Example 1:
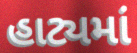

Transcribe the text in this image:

હાટ્યમાં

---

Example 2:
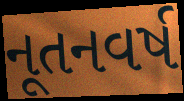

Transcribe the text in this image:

નૂતનવર્ષ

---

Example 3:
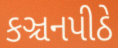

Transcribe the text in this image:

કઞ્ચનપીઠે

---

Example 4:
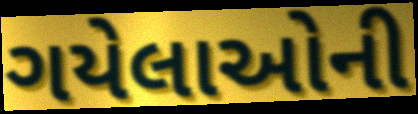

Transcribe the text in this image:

ગયેલાઓની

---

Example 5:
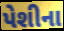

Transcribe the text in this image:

પેશીના